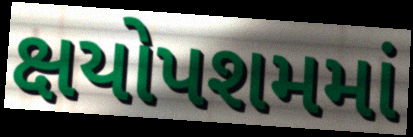
ક્ષયોપશમમાં